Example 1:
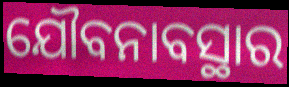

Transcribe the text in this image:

ଯୌବନାବସ୍ଥାର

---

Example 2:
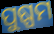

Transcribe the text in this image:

ପୁଷ୍ପମ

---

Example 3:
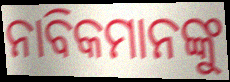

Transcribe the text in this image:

ନାବିକମାନଙ୍କୁ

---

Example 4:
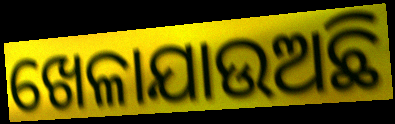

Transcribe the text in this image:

ଖେଳାଯାଉଅଛି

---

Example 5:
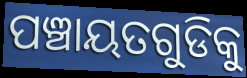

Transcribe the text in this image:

ପଞ୍ଚାୟତଗୁଡିକୁ